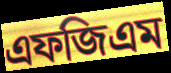
এফজিএম